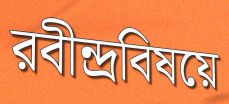
রবীন্দ্রবিষয়ে